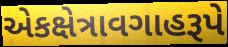
એકક્ષેત્રાવગાહરૂપે